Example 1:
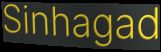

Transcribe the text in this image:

Sinhagad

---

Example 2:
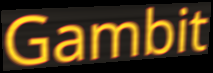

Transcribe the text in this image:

Gambit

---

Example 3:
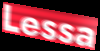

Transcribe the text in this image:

Lessa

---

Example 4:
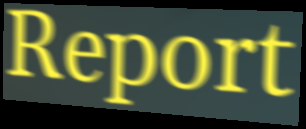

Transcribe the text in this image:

Report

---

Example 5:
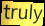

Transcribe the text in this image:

truly